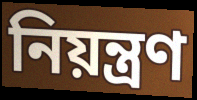
নিয়ন্ত্রণ